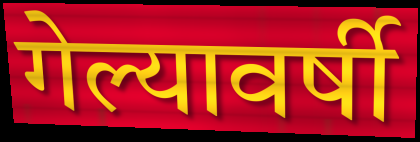
गेल्यावर्षी